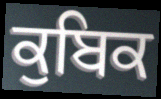
ਕੁਬਿਕ